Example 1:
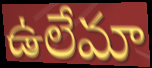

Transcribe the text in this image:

ఉలేమా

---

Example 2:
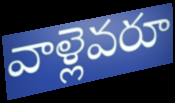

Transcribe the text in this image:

వాళ్లెవరూ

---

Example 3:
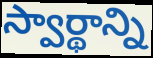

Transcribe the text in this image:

స్వార్థాన్ని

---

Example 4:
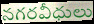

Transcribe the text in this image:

నగరవీధులు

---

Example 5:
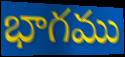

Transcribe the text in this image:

భాగము